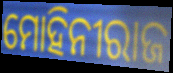
ମୋହିନୀରାଜ